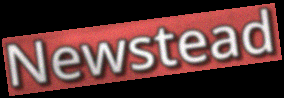
Newstead